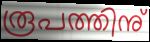
രൂപത്തിനു്